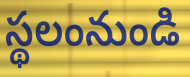
స్థలంనుండి